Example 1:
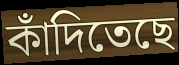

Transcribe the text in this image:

কাঁদিতেছে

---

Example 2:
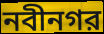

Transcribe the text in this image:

নবীনগর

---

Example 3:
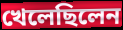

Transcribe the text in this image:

খেলেছিলেন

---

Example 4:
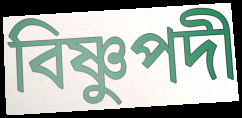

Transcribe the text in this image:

বিষ্ণুপদী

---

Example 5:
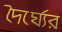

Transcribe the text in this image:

দৈর্ঘ্যের